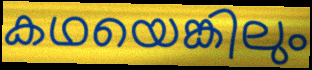
കഥയെങ്കിലും